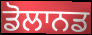
ਡੋਲਾਨਡ